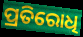
ପ୍ରତିରୋଧି